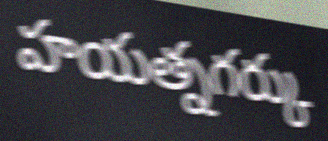
హయత్నగర్కు